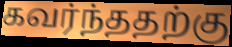
கவர்ந்ததற்கு